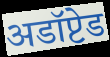
अडॉप्टेड